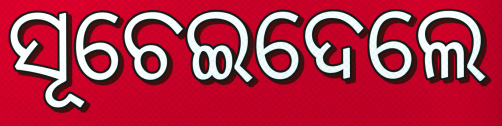
ସୂଚେଇଦେଲେ